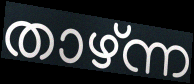
താഴ്ന്ന